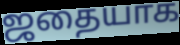
ஜதையாக